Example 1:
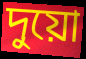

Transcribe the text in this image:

দুয়ো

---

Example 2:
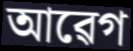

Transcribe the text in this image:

আৱেগ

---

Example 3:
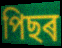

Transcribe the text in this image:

পিছৰ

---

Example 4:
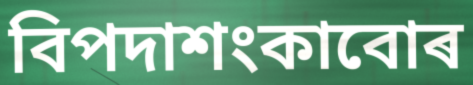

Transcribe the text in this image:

বিপদাশংকাবোৰ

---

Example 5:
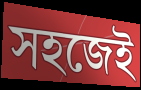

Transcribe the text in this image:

সহজেই